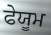
ਫੇਯੂਮ